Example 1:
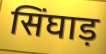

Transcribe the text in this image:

सिंघाड़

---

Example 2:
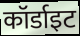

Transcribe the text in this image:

कॉर्डाइट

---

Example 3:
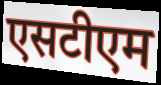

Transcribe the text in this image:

एसटीएम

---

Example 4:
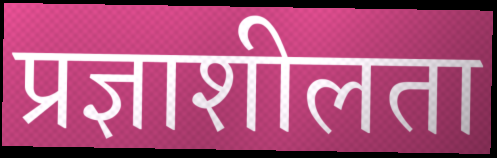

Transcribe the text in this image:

प्रज्ञाशीलता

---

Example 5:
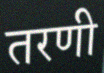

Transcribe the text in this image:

तरणी